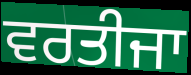
ਵਰਤੀਜਾ